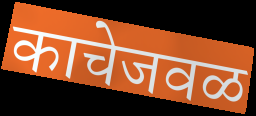
काचेजवळ